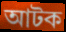
আটক